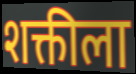
शक्तीला